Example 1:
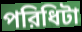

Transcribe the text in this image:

পরিধিটা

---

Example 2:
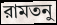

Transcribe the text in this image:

রামতনু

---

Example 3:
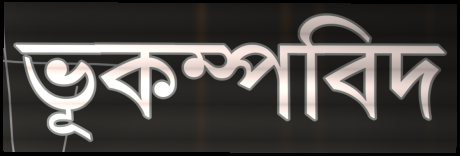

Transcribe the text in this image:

ভূকম্পবিদ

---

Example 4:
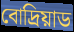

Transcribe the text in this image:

বোদ্রিয়াড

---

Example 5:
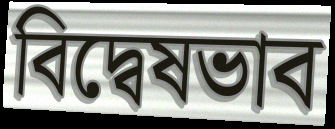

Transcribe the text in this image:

বিদ্বেষভাব